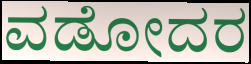
ವಡೋದರ